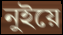
নুইয়ে